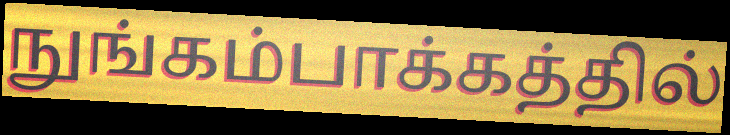
நுங்கம்பாக்கத்தில்